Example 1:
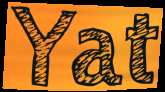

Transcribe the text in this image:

Yat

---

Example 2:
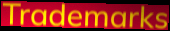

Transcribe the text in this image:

Trademarks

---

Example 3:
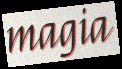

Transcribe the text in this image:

magia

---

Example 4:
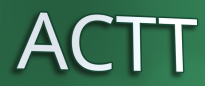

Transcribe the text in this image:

ACTT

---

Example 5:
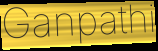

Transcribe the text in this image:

Ganpathi